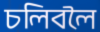
চলিবলৈ